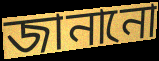
জানানো